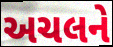
અચલને